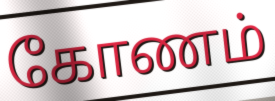
கோணம்